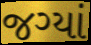
જગ્યાં